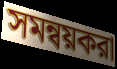
সমন্বয়করা